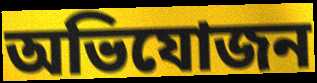
অভিযোজন